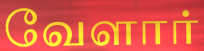
வேளார்